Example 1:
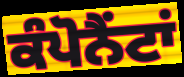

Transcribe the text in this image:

ਕੰਪੋਨੈਂਟਾਂ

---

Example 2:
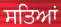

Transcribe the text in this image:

ਸਤਿਆਂ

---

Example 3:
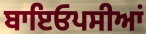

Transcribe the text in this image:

ਬਾਇਓਪਸੀਆਂ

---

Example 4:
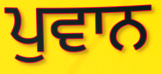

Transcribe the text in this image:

ਪੁਵਾਨ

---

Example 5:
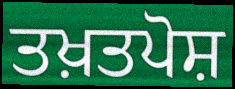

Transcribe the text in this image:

ਤਖ਼ਤਪੋਸ਼